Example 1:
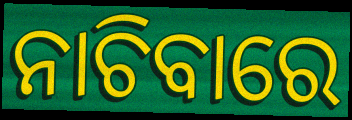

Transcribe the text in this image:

ନାଚିବାରେ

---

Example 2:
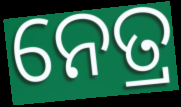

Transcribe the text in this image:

ନେତ୍ର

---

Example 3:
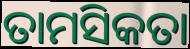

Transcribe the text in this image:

ତାମସିକତା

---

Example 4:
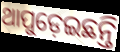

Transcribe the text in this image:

ଥାପୁଡ଼େଇଛନ୍ତି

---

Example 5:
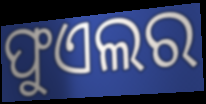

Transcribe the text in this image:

ଫୁଏଲର